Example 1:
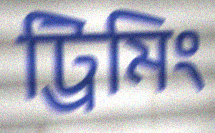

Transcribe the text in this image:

ট্রিমিং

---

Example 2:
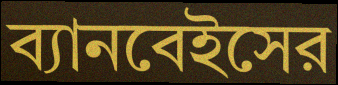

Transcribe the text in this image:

ব্যানবেইসের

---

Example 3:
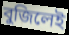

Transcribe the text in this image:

বুজিলেই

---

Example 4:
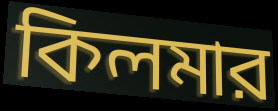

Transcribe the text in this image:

কিলমার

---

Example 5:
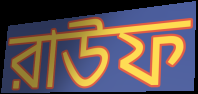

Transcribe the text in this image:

রাউফ